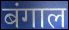
बंगाल